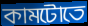
কামটোতে